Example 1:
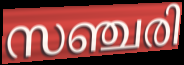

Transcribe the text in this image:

സഞ്ചരി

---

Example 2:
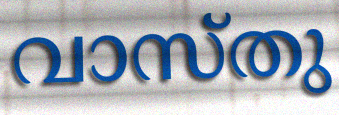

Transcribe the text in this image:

വാസ്തു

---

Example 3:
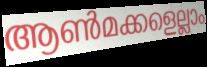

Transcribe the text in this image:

ആൺമക്കളെല്ലാം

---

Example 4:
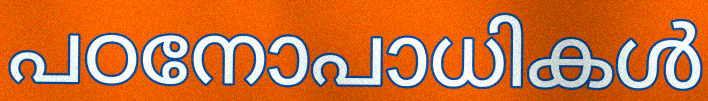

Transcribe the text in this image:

പഠനോപാധികൾ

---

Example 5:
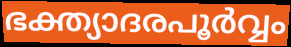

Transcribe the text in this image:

ഭക്ത്യാദരപൂർവ്വം